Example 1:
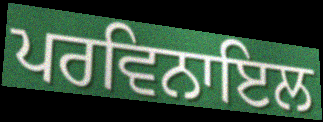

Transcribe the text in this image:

ਪਰਵਿਨਾਇਲ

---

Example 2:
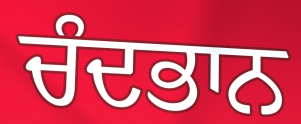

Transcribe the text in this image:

ਚੰਦਭਾਨ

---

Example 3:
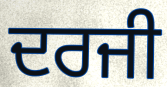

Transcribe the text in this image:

ਦਰਜੀ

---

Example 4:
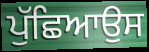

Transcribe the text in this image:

ਪੁੱਛਿਆਉਸ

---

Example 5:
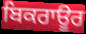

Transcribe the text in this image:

ਬਿਕਰਾਊਰ